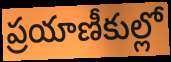
ప్రయాణీకుల్లో